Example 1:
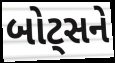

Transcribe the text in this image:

બોટ્સને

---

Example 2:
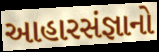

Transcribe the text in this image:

આહારસંજ્ઞાનો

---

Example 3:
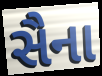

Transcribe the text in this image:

સૈના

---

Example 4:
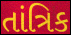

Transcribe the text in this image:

તાંત્રિક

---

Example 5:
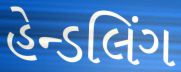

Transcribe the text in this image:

હેન્ડલિંગ